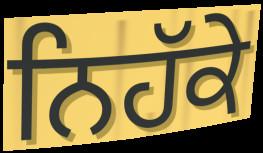
ਨਿਹੱਕੇ